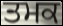
ਤਮਕ